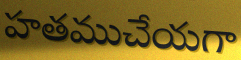
హతముచేయగా